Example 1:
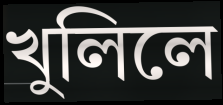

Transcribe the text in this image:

খুলিলে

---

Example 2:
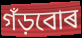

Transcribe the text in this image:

গঁড়বোৰ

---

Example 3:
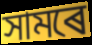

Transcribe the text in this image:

সামৰে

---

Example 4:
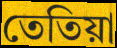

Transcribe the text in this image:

তেতিয়া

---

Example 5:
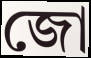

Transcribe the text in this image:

জো